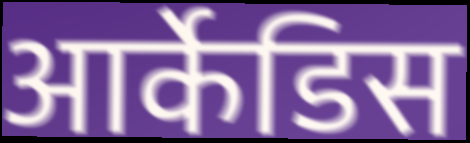
आर्केडिस